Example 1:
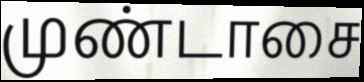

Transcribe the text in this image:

முண்டாசை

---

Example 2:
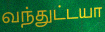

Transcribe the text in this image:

வந்துட்டயா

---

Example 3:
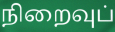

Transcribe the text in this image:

நிறைவுப்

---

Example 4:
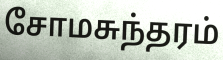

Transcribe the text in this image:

சோமசுந்தரம்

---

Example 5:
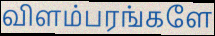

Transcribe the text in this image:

விளம்பரங்களே